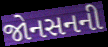
જોનસનની